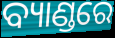
ବ୍ୟାଣ୍ଡରେ